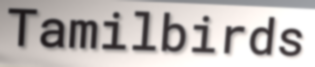
Tamilbirds